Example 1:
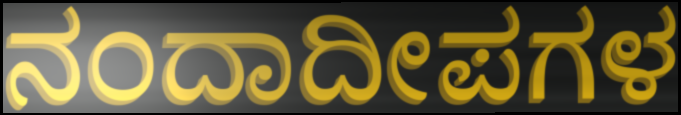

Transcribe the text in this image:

ನಂದಾದೀಪಗಳ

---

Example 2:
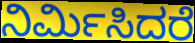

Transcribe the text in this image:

ನಿರ್ಮಿಸಿದರೆ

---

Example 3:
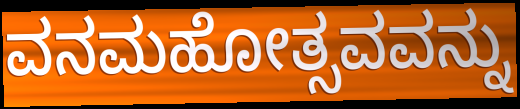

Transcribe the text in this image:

ವನಮಹೋತ್ಸವವನ್ನು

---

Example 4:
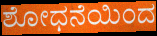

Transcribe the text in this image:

ಶೋಧನೆಯಿಂದ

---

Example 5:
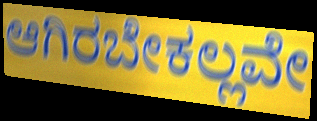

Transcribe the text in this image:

ಆಗಿರಬೇಕಲ್ಲವೇ